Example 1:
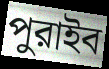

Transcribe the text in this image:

পুরাইব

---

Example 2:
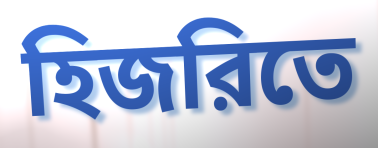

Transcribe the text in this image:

হিজরিতে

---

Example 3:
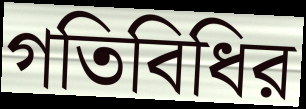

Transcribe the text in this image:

গতিবিধির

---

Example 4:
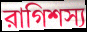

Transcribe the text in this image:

রাগিশস্য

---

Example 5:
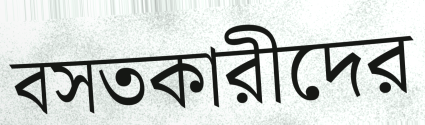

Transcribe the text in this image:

বসতকারীদের